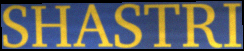
SHASTRI